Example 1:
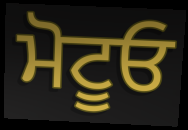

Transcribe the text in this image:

ਮੋਟੂਓ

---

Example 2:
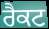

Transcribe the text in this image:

ਰੈਕਟ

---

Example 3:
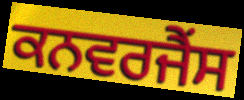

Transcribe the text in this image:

ਕਨਵਰਜੈਂਸ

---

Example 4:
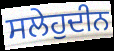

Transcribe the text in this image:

ਸਲੇਹੁਦੀਨ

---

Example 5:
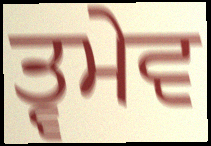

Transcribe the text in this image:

ਤ੍ਵਮੇਵ